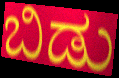
ಬಿಡು